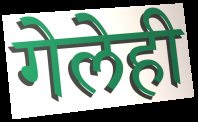
गेलेही